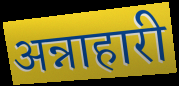
अन्नाहारी